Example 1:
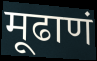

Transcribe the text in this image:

मूढाणं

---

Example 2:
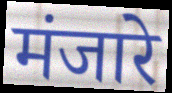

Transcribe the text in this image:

मंजारे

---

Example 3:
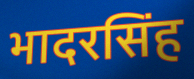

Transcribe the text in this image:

भादरसिंह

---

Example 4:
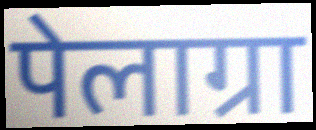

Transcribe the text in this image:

पेलाग्रा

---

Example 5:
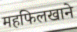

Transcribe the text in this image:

महफिलखाने